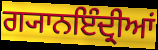
ਗ੍ਯਾਨਇੰਦ੍ਰੀਆਂ